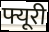
फ्यूरी